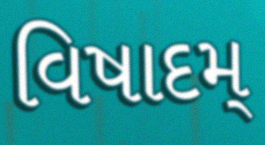
વિષાદમ્